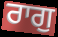
ਰਾਗੁ